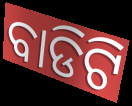
ବାଡିଟି